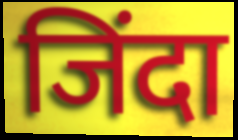
जिंदा